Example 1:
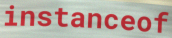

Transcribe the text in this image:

instanceof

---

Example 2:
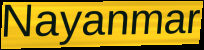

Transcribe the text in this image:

Nayanmar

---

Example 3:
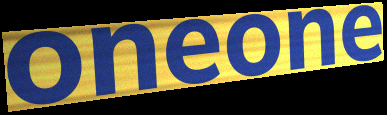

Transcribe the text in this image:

oneone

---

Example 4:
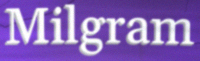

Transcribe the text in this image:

Milgram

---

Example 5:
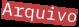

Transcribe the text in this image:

Arquivo